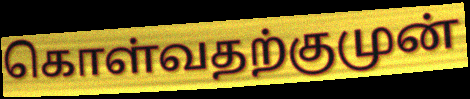
கொள்வதற்குமுன்